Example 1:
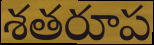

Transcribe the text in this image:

శతరూప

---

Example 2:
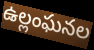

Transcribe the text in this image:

ఉల్లంఘనల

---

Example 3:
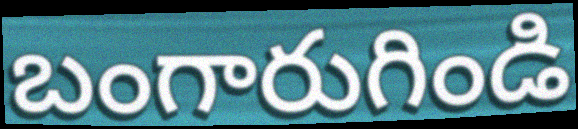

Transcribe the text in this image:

బంగారుగిండి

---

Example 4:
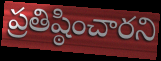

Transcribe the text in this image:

ప్రతిష్ఠించారని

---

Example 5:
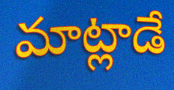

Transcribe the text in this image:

మాట్లాడే